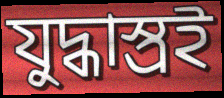
যুদ্ধাস্ত্রই